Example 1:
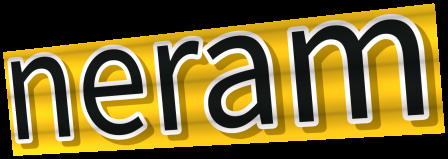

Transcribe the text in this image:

neram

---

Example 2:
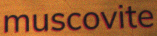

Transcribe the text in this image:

muscovite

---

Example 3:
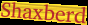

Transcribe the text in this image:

Shaxberd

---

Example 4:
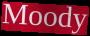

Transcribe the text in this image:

Moody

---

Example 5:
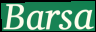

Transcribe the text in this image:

Barsa